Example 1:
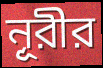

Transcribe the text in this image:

নূরীর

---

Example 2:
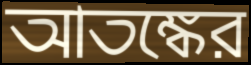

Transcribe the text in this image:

আতঙ্কের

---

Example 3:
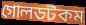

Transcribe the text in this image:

গোলডটকম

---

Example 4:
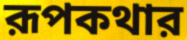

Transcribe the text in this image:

রূপকথার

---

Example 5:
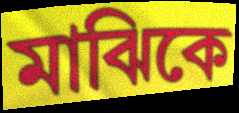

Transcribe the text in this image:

মাঝিকে